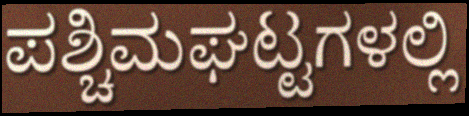
ಪಶ್ಚಿಮಘಟ್ಟಗಳಲ್ಲಿ